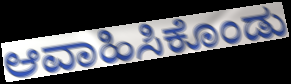
ಆವಾಹಿಸಿಕೊಂಡು